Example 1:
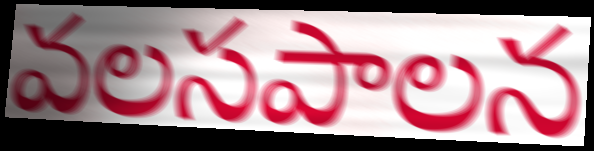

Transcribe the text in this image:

వలసపాలన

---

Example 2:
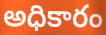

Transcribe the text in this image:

అధికారం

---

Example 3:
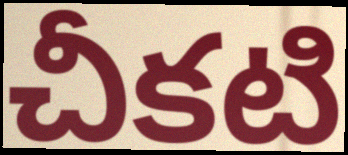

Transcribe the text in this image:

చీకటి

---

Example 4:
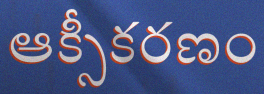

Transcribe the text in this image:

ఆక్సీకరణం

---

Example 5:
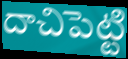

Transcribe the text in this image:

దాచిపెట్టి